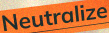
Neutralize